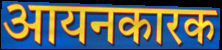
आयनकारक